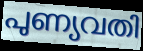
പുണ്യവതി